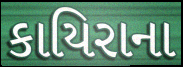
કાયિરાના